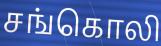
சங்கொலி